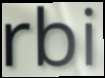
rbi